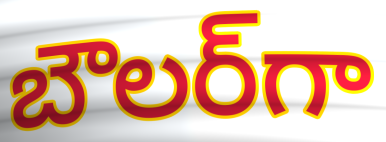
బౌలర్‌గా